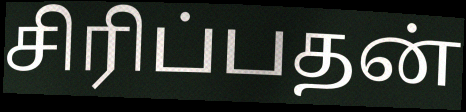
சிரிப்பதன்